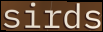
sirds